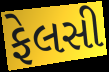
ફેલસી